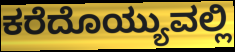
ಕರೆದೊಯ್ಯುವಲ್ಲಿ